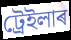
ট্ৰেইলাৰ